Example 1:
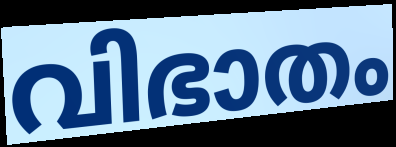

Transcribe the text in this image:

വിഭാതം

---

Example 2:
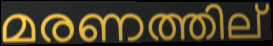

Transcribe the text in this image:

മരണത്തില്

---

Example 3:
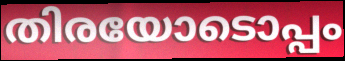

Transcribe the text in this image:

തിരയോടൊപ്പം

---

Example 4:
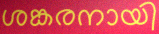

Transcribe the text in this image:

ശങ്കരനായി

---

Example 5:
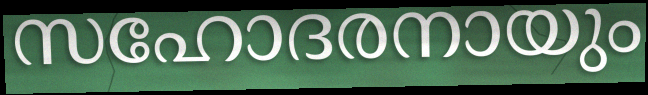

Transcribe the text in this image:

സഹോദരനായും